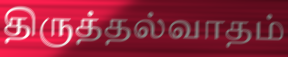
திருத்தல்வாதம்